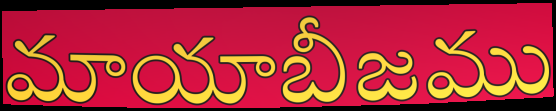
మాయాబీజము